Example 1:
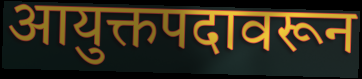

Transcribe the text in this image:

आयुक्तपदावरून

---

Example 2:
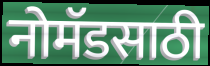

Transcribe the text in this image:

नोमॅडसाठी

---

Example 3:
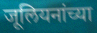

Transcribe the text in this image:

जूलियनांच्या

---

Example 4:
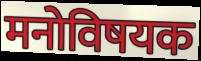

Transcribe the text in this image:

मनोविषयक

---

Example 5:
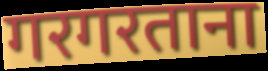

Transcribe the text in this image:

गरगरताना